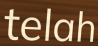
telah